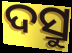
ଦସ୍ରୁ